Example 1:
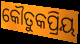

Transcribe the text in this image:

କୌତୁକପ୍ରିୟ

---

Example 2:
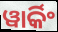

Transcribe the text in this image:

ୱାର୍କିଂ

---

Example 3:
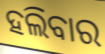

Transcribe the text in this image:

ହଲିବାର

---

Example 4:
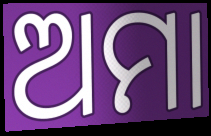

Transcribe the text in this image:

ଅମା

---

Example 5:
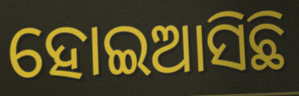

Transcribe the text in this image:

ହୋଇଆସିଛି